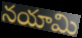
నయామి